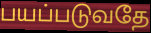
பயப்படுவதே